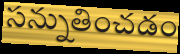
సన్నుతించడం